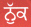
ਨੁੱਕ